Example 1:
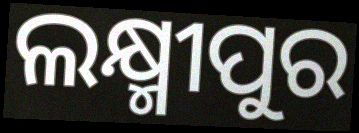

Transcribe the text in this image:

ଲକ୍ଷ୍ମୀପୁର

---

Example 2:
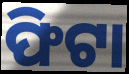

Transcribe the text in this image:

ଫିଟା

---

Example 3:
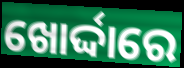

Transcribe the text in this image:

ଖୋର୍ଦ୍ଦାରେ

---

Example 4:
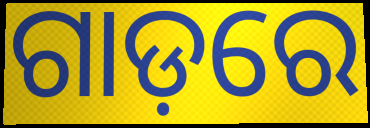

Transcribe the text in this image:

ଗାଡ଼ରେ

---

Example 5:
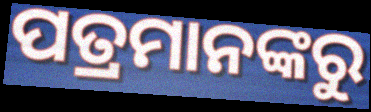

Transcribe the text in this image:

ପତ୍ରମାନଙ୍କରୁ